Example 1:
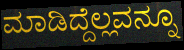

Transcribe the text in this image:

ಮಾಡಿದ್ದೆಲ್ಲವನ್ನೂ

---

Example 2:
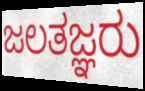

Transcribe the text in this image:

ಜಲತಜ್ಞರು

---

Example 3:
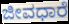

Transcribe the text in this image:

ಜೀವಧಾರೆ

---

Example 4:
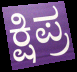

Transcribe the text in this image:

ಕ್ಷಿಪ್ರ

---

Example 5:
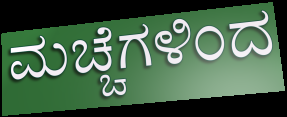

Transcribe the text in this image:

ಮಚ್ಚೆಗಳಿಂದ